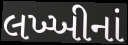
લખ્ખીનાં